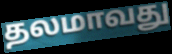
தலமாவது